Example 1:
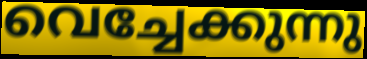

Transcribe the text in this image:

വെച്ചേക്കുന്നു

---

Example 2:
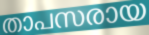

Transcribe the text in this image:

താപസരായ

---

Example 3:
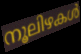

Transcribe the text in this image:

നൂലിഴകൾ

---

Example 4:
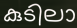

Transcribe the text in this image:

കുടിലാ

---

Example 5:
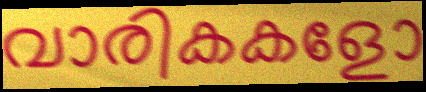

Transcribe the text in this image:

വാരികകളോ